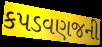
કપડવણજની